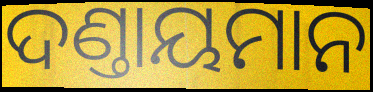
ଦଣ୍ତାୟମାନ